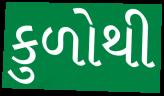
કુળોથી